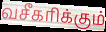
வசீகரிக்கும்